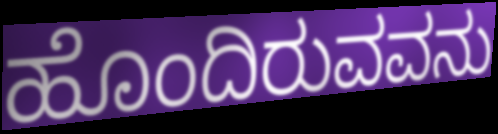
ಹೊಂದಿರುವವನು